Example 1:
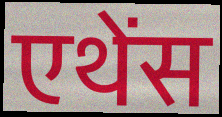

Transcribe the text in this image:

एथेंस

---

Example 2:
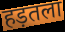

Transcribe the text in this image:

हड़तला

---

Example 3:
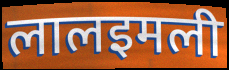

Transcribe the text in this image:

लालइमली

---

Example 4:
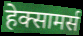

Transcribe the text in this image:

हेक्सामर्स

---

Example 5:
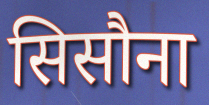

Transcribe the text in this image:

सिसौना